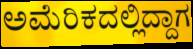
ಅಮೆರಿಕದಲ್ಲಿದ್ದಾಗ